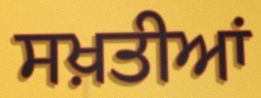
ਸਖ਼ਤੀਆਂ